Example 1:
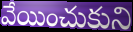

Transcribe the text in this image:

వేయించుకుని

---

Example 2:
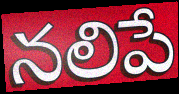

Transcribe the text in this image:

నలిపే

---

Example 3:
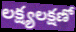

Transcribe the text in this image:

లక్ష్యలక్షణో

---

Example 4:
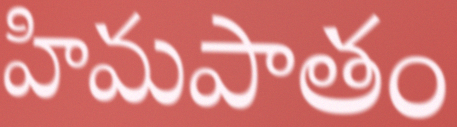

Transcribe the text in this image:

హిమపాతం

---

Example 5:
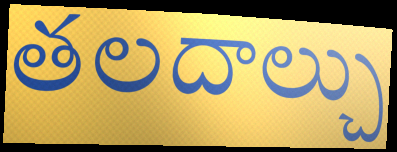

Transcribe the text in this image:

తలదాల్చు